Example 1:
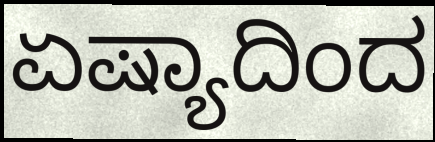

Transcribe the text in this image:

ಏಷ್ಯಾದಿಂದ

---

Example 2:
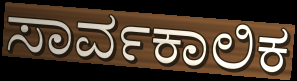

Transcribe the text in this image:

ಸಾರ್ವಕಾಲಿಕ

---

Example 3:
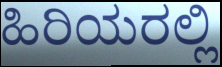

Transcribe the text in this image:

ಹಿರಿಯರಲ್ಲಿ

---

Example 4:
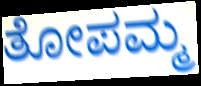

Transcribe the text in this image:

ತೋಪಮ್ಮ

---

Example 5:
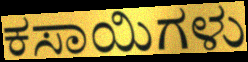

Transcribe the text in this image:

ಕಸಾಯಿಗಳು